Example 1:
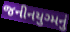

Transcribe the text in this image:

જનીનયુગ્મનું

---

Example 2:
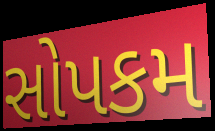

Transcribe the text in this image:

સોપકમ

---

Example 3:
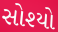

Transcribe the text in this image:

સોશ્યો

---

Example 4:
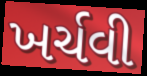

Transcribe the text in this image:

ખર્ચવી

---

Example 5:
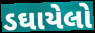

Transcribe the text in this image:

ડઘાયેલો